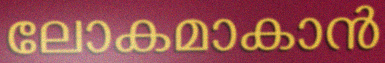
ലോകമാകാൻ